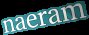
naeram